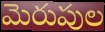
మెరుపుల